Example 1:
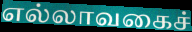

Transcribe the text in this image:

எல்லாவகைச்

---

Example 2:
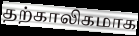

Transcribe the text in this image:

தற்காலிகமாக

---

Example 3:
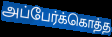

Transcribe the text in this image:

அப்பேர்க்கொத்த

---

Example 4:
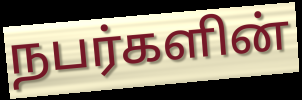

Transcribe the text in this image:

நபர்களின்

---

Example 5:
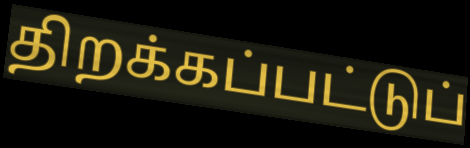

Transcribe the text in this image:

திறக்கப்பட்டுப்